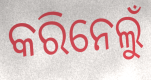
କରିନେଲୁଁ